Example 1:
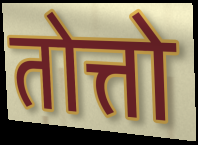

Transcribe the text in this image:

तोत्तो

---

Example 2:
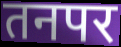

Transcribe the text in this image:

तनपर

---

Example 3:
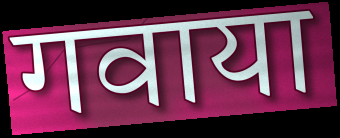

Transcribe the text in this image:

गवाया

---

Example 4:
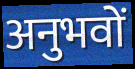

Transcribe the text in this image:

अनुभवों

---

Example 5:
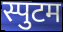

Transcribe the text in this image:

स्पुटम